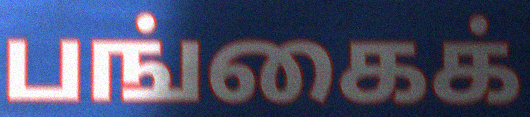
பங்கைக்